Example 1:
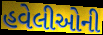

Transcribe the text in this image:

હવેલીઓની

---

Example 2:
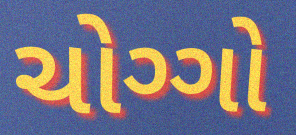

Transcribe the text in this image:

ચોગ્ગો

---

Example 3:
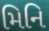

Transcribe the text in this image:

મિનિ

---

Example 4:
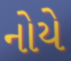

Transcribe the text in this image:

નોયે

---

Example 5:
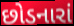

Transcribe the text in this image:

છોડનારાં